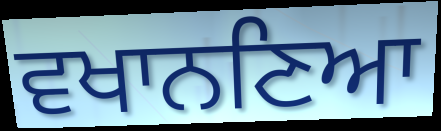
ਵਖਾਨਣਿਆ